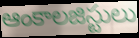
ఆంకాలజిస్టులు